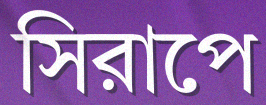
সিরাপে